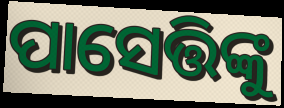
ପାସେତ୍ତିଙ୍କୁ